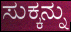
ಸುಕ್ಕನ್ನು